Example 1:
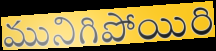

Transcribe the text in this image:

మునిగిపోయిరి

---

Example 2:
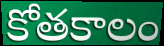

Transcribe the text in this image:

కోతకాలం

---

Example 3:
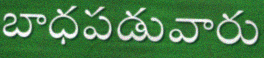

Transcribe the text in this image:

బాధపడువారు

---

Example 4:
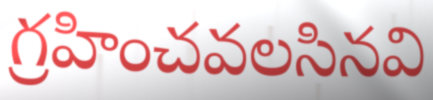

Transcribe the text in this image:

గ్రహించవలసినవి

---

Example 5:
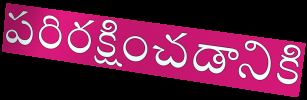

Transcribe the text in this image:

పరిరక్షించడానికి